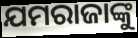
ଯମରାଜାଙ୍କୁ